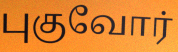
புகுவோர்